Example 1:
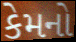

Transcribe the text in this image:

કેમનો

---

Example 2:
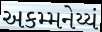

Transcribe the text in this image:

અકમ્મનેય્યં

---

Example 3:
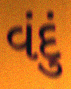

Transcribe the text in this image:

વંદું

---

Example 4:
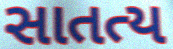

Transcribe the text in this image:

સાતત્ય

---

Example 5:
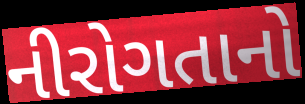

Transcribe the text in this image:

નીરોગતાનો